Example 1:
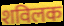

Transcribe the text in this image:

शविलक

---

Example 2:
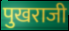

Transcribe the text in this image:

पुखराजी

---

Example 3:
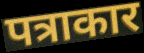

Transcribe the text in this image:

पत्राकार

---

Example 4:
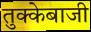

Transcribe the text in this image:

तुक्केबाजी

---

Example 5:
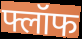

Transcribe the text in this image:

फ्लॉफ